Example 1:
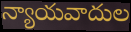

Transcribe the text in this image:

న్యాయవాదుల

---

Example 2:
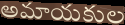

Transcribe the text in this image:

అమాయకుల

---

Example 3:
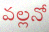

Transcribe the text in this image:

వల్లనో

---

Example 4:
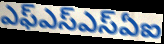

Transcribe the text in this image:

ఎఫ్ఎస్ఎస్ఏఐ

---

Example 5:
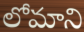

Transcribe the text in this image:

లోమాని